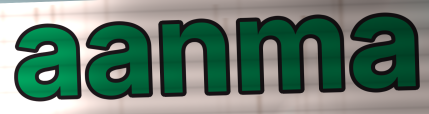
aanma